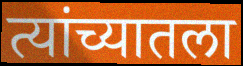
त्यांच्यातला